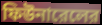
ফিউনারেলের